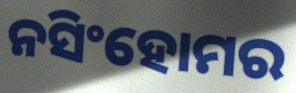
ନସିଂହୋମର